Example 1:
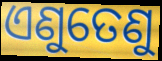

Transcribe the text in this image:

ଏଣୁତେଣୁ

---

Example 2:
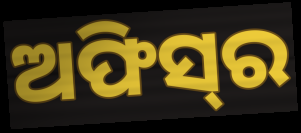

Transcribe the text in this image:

ଅଫିସ୍‌ର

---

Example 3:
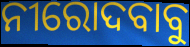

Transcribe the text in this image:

ନୀରୋଦବାବୁ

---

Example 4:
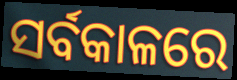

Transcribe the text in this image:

ସର୍ବକାଳରେ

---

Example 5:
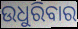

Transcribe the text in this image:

ଉଧୁରିବାର